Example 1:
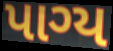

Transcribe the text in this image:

પાગ્ય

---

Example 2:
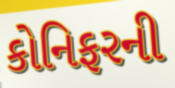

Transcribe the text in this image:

કોનિફરની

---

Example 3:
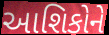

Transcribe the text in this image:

આશિકોને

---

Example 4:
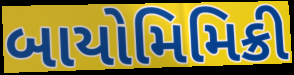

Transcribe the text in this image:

બાયોમિમિક્રી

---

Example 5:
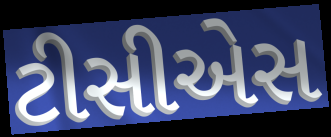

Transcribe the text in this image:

ટીસીએસ